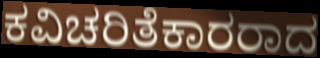
ಕವಿಚರಿತೆಕಾರರಾದ